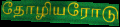
தோழியரோடு